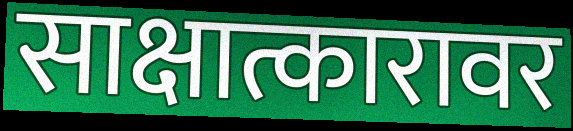
साक्षात्कारावर